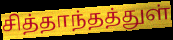
சித்தாந்தத்துள்